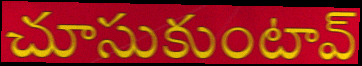
చూసుకుంటావ్